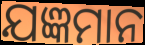
ଯଜ୍ଞମାନ